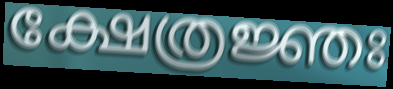
ക്ഷേത്രജ്ഞഃ